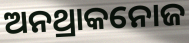
ଅନଥ୍ରାକନୋଜ